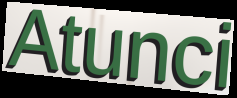
Atunci